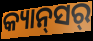
କ୍ୟାନ୍‍ସର୍